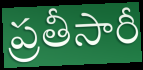
ప్రతీసారీ